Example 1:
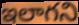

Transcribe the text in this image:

ఇలాగని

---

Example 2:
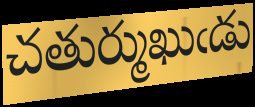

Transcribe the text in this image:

చతుర్ముఖుఁడు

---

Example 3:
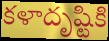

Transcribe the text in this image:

కళాదృష్టికి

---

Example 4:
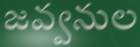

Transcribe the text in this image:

జవ్వనుల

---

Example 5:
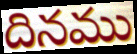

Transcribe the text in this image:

దినము